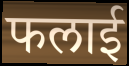
फलाई